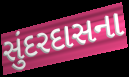
સુંદરદાસના